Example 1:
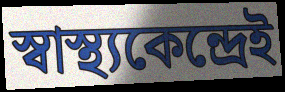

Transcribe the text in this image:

স্বাস্থ্যকেন্দ্রেই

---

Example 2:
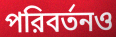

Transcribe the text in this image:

পরিবর্তনও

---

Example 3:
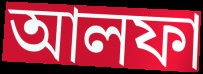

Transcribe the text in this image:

আলফা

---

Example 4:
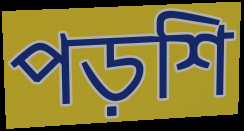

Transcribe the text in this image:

পড়শি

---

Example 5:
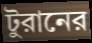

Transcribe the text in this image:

টুরানের